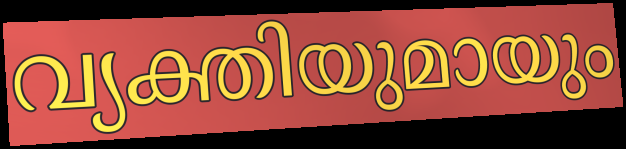
വ്യക്തിയുമായും